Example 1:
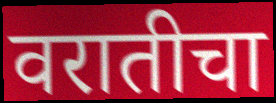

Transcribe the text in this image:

वरातीचा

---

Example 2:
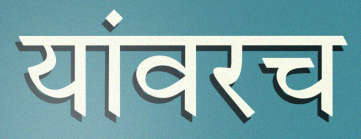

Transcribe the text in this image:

यांवरच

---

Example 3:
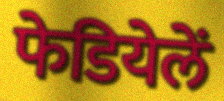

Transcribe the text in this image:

फेडियेलें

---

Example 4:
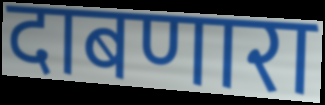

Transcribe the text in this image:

दाबणारा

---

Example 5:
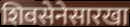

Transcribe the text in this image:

शिवसेनेसारखा